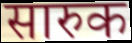
सारुक